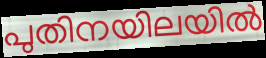
പുതിനയിലയിൽ